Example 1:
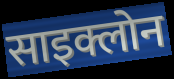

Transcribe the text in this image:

साइक्लोन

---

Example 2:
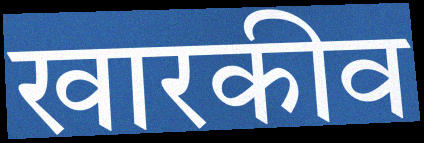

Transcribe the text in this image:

खारकीव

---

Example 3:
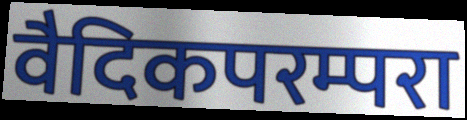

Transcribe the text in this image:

वैदिकपरम्परा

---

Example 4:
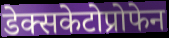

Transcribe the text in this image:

डेक्सकेटोप्रोफेन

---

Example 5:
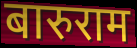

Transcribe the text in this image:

बारुराम